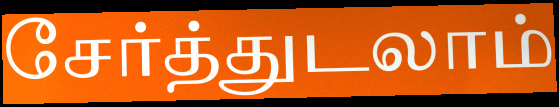
சேர்த்துடலாம்